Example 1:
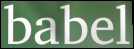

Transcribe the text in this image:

babel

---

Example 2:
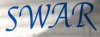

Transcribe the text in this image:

SWAR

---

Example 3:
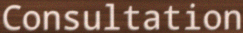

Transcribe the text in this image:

Consultation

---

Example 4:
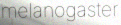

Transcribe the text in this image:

melanogaster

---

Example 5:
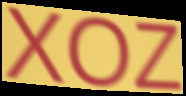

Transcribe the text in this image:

XOZ